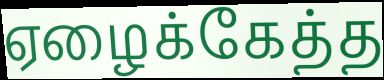
ஏழைக்கேத்த